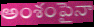
అంశంపైనా